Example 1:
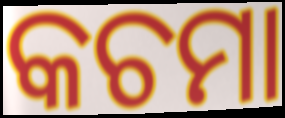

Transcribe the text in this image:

କଚମା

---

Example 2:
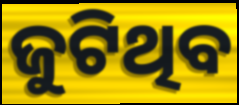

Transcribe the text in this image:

ଜୁଟିଥିବ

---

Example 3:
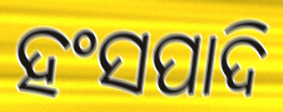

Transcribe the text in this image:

ହଂସପାଦି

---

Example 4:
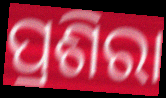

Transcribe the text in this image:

ପ୍ରଶିରା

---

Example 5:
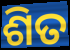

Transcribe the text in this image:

ଶିତ